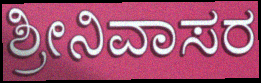
ಶ್ರೀನಿವಾಸರ